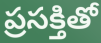
ప్రసక్తితో